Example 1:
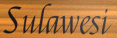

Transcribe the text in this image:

Sulawesi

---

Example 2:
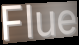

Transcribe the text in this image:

Flue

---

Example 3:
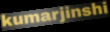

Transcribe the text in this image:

kumarjinshi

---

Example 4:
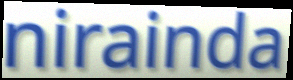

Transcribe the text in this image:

nirainda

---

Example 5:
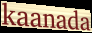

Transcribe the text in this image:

kaanada